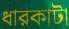
ধারকাটা